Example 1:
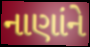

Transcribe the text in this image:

નાણાંને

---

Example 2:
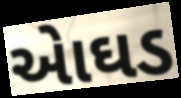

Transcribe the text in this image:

એાઘડ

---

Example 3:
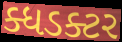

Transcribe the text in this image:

ક્ધડક્ટર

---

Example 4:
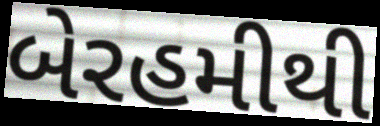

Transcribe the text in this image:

બેરહમીથી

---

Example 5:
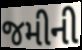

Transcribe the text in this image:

જમીની